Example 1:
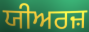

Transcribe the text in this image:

ਯੀਅਰਜ਼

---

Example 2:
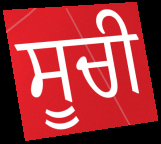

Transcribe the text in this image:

ਸੂਚੀ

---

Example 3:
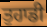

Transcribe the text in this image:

ਤੁਹਾਡੀ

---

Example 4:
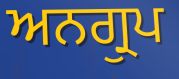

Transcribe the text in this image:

ਅਨਗ੍ਰੁਪ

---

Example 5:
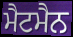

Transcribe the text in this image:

ਮੈਟਮੈਨ